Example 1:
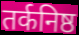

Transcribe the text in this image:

तर्कनिष्ठ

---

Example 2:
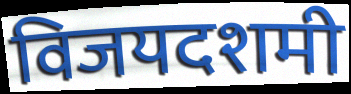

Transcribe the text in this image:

विजयदशमी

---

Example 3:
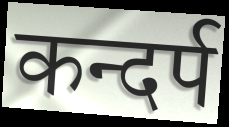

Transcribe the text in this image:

कन्दर्प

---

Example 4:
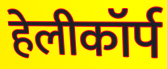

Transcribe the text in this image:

हेलीकॉर्प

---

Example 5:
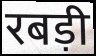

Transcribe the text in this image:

रबड़ी